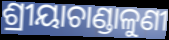
ଶ୍ରୀୟାଚାଣ୍ଡାଳୁଣୀ